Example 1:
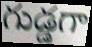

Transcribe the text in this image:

గుడ్డగా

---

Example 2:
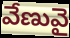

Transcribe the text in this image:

వేణువై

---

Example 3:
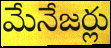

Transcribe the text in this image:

మేనేజర్లు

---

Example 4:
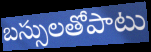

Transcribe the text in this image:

బస్సులతోపాటు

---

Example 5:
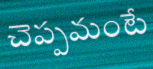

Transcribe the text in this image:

చెప్పమంటే